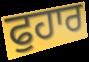
ਫੁਹਾਰ